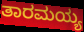
ತಾರಮಯ್ಯ